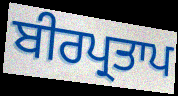
ਬੀਰਪ੍ਰਤਾਪ